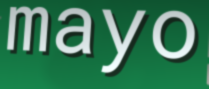
mayo